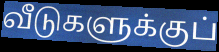
வீடுகளுக்குப்